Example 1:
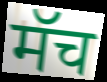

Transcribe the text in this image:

मॅच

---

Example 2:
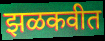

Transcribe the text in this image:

झळकवीत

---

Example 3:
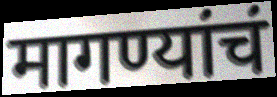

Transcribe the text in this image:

मागण्यांचं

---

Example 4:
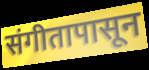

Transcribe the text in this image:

संगीतापासून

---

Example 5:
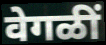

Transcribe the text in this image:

वेगळीं